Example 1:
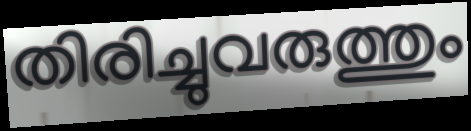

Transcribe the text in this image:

തിരിച്ചുവരുത്തും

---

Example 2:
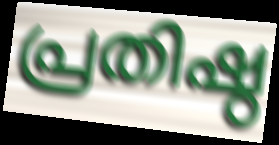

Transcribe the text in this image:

പ്രതിഷ്ഠ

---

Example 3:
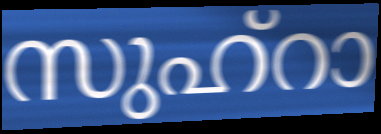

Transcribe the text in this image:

സുഹ്റാ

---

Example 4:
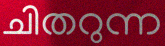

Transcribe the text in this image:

ചിതറുന്ന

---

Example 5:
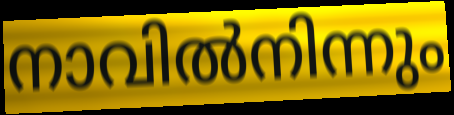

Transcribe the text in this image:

നാവിൽനിന്നും